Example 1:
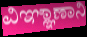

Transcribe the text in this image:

ವಿಞ್ಞಾಣಾನಿ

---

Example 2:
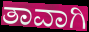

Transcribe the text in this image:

ತಾವಾಗಿ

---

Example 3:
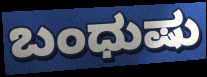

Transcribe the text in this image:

ಬಂಧುಷು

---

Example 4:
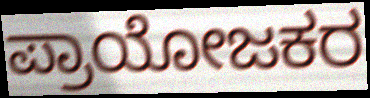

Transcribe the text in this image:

ಪ್ರಾಯೋಜಕರ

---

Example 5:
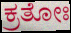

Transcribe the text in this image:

ಕ್ರತೋಃ